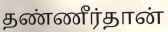
தண்ணீர்தான்